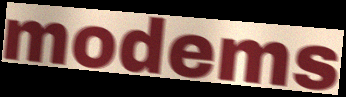
modems